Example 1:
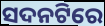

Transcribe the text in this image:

ସଦନଟିରେ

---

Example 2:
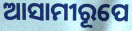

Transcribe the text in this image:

ଆସାମୀରୂପେ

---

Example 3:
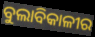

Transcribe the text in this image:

ବୁଲାବିକାଳୀର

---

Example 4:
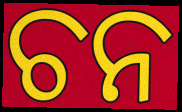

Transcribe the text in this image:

ଚନ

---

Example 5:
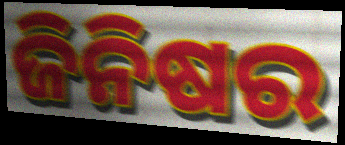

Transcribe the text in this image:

ଜିନିଷର